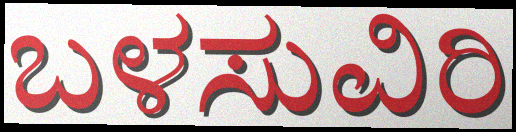
ಬಳಸುವಿರಿ